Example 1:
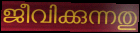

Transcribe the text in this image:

ജീവിക്കുന്നതു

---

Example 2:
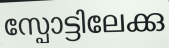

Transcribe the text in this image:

സ്പോട്ടിലേക്കു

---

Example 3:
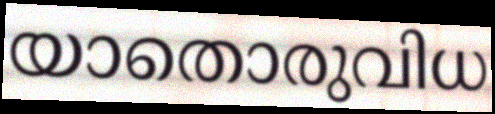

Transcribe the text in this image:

യാതൊരുവിധ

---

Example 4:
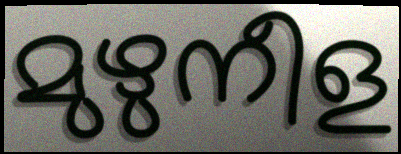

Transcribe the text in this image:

മുഴുനീള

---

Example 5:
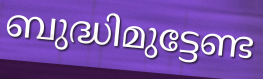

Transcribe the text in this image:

ബുദ്ധിമുട്ടേണ്ട